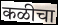
कळीचा